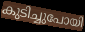
കുടിച്ചുപോയി